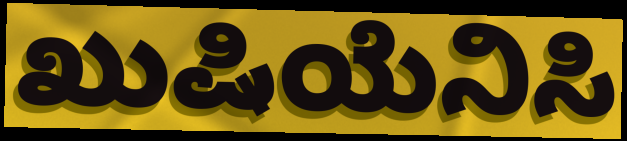
ಖುಷಿಯೆನಿಸಿ